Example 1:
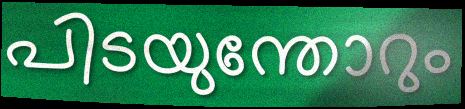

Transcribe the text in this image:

പിടയുന്തോറും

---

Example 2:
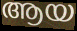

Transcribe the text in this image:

ആയ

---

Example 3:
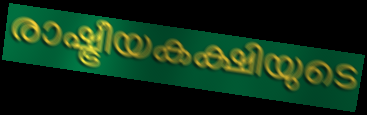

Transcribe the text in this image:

രാഷ്ട്രീയകക്ഷിയുടെ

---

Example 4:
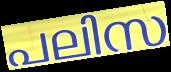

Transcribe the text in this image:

പലിസ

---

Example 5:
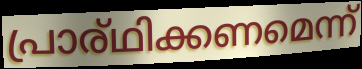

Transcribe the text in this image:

പ്രാര്ഥിക്കണമെന്ന്